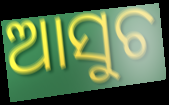
ଆସୁଚ